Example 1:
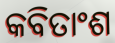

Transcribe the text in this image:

କବିତାଂଶ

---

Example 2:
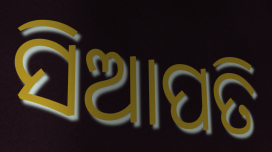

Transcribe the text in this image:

ସିଆପତି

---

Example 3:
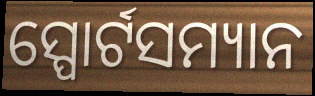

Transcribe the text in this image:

ସ୍ପୋର୍ଟସମ୍ୟାନ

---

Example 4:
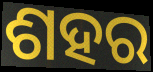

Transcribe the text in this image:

ଶହର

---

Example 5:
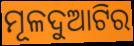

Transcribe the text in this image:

ମୂଳଦୁଆଟିର